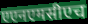
एएनएमसीएच